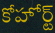
కోహోర్ట్